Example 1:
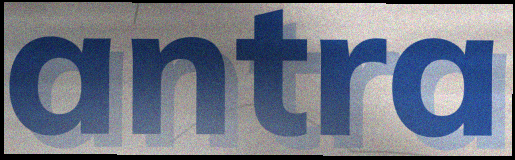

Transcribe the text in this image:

antra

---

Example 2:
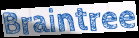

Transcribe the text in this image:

Braintree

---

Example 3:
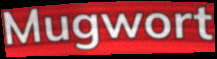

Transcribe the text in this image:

Mugwort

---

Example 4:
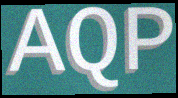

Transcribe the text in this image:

AQP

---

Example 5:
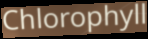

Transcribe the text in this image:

Chlorophyll